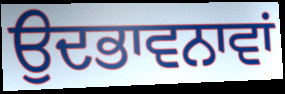
ਉਦਭਾਵਨਾਵਾਂ